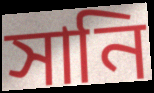
সানি